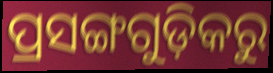
ପ୍ରସଙ୍ଗଗୁଡ଼ିକରୁ